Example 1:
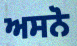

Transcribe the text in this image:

ਅਸਨੋ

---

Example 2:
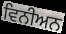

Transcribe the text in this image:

ਵਿਨੀਅਨ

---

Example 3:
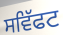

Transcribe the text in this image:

ਸਵਿੱਫਟ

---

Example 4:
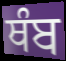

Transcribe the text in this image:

ਥੰਬ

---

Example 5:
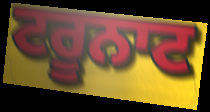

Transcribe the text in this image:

ਟਰੂਨਾਟ